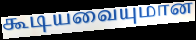
கூடியவையுமான